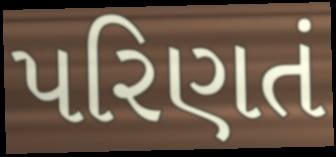
પરિણતં